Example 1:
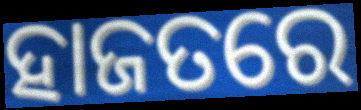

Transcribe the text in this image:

ହାଜତରେ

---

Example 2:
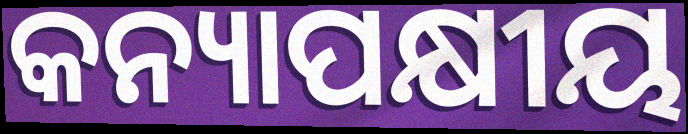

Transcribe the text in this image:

କନ୍ୟାପକ୍ଷୀୟ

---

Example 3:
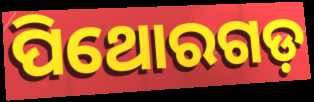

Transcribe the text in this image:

ପିଥୋରଗଡ଼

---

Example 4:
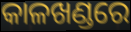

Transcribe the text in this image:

କାଳଖଣ୍ଡରେ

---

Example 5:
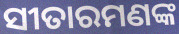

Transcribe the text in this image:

ସୀତାରମଣଙ୍କ